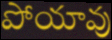
పోయావు